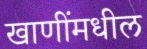
खाणींमधील